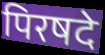
पिरषदे